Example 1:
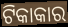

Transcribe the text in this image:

ଟିକାକାର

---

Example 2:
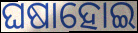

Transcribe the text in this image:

ଘଷାହୋଇ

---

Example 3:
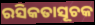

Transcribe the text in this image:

ରସିକତାସୂଚକ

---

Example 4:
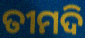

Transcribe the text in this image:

ତୀମଦି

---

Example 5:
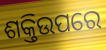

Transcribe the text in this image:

ଶକ୍ତିଉପରେ